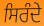
ਸਿਰੰਦੇ